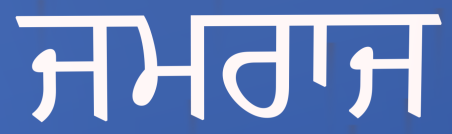
ਜਮਰਾਜ